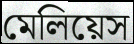
মেলিয়েস